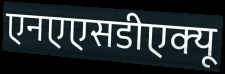
एनएएसडीएक्यू